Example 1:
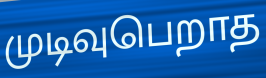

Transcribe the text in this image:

முடிவுபெறாத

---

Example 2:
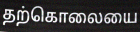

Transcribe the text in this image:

தற்கொலையை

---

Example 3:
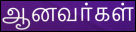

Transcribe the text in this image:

ஆனவர்கள்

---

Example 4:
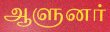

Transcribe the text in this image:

ஆளுனர்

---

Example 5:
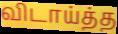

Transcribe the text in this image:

விடாய்த்த